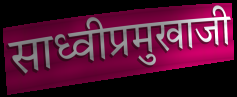
साध्वीप्रमुखाजी